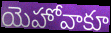
యెహోవాకూ